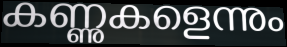
കണ്ണുകളെന്നും